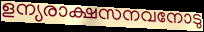
ളന്യരാക്ഷസനവനോടു